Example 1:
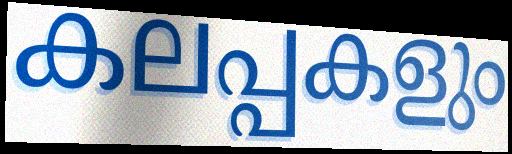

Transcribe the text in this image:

കലപ്പകളും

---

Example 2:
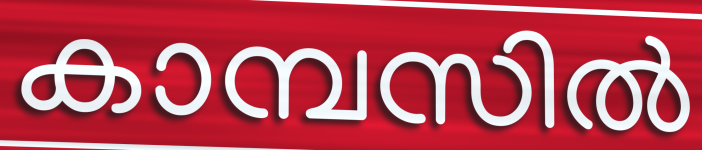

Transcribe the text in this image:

കാമ്പസിൽ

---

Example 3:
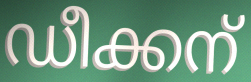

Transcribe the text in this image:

ഡീക്കന്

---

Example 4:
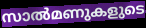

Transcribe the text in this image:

സാൽമണുകളുടെ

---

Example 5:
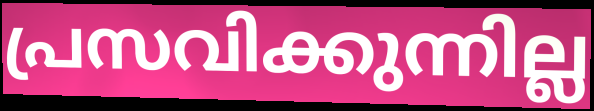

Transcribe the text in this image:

പ്രസവിക്കുന്നില്ല